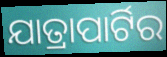
ଯାତ୍ରାପାର୍ଟିର